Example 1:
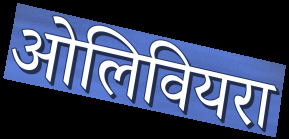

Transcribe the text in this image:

ओलिवियरा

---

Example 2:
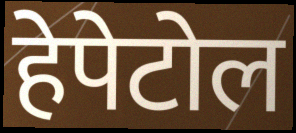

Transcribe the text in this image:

हेपेटोल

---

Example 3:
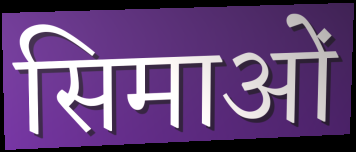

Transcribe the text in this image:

सिमाओं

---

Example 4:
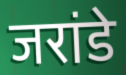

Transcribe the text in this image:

जरांडे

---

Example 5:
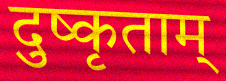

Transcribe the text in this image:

दुष्कृताम्